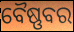
ବୈଷ୍ଣବର